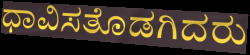
ಧಾವಿಸತೊಡಗಿದರು